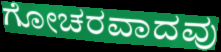
ಗೋಚರವಾದವು